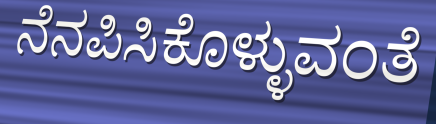
ನೆನಪಿಸಿಕೊಳ್ಳುವಂತೆ